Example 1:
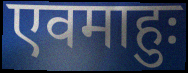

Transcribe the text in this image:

एवमाहुः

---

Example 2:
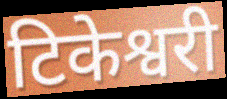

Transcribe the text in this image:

टिकेश्वरी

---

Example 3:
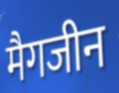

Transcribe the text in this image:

मैगजीन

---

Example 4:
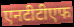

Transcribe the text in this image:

एनटीटीएफ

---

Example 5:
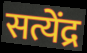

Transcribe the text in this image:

सत्येंद्र